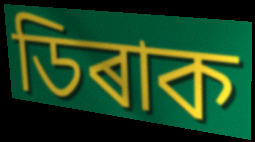
ডিৰাক